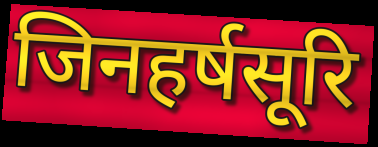
जिनहर्षसूरि